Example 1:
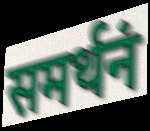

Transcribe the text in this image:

समर्थनं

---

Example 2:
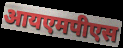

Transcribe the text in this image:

आयएमपीएस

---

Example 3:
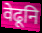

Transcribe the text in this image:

वेढूनि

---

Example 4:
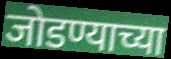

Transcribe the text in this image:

जोडण्याच्या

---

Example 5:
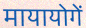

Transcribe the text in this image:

मायायोगें